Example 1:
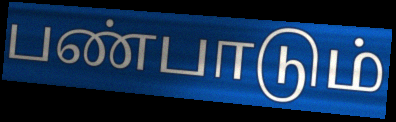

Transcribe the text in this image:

பண்பாடும்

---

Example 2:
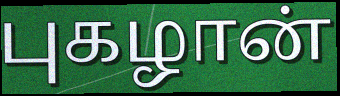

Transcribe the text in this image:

புகழான்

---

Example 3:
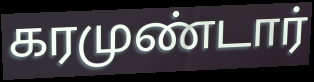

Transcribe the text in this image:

கரமுண்டார்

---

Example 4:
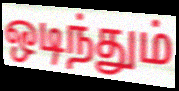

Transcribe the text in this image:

ஒடிந்தும்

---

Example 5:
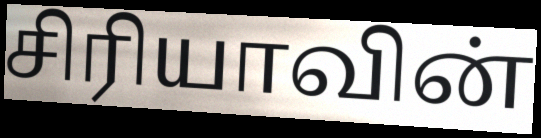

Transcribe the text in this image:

சிரியாவின்